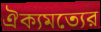
ঐক্যমত্যের